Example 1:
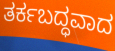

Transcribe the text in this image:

ತರ್ಕಬದ್ಧವಾದ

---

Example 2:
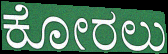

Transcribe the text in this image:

ಕೋರಲು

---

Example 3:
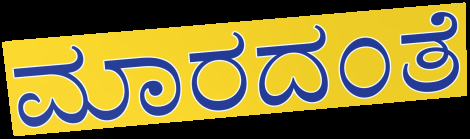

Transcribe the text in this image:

ಮಾರದಂತೆ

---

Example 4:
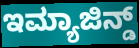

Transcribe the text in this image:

ಇಮ್ಯಾಜಿನ್ಡ್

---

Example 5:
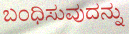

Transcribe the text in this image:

ಬಂಧಿಸುವುದನ್ನು